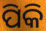
ପିକି